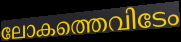
ലോകത്തെവിടേം